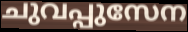
ചുവപ്പുസേന